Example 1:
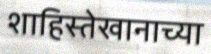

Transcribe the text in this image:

शाहिस्तेखानाच्या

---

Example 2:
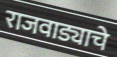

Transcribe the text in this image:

राजवाड्याचे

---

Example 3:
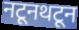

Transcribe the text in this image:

नटूनथटून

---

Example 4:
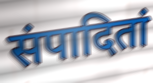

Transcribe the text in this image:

संपादितां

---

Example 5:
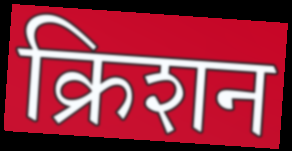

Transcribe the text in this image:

क्रिशन